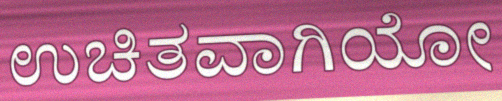
ಉಚಿತವಾಗಿಯೋ